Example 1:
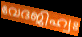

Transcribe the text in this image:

വേദജിഹ്വഃ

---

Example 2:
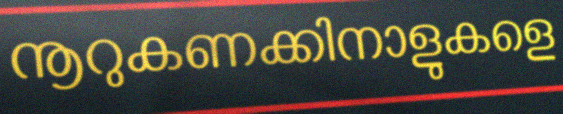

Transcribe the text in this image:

നൂറുകണക്കിനാളുകളെ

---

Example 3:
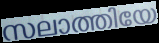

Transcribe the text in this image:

സലാത്തിയേ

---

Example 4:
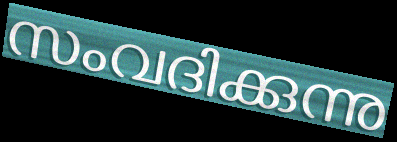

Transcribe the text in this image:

സംവദിക്കുന്നു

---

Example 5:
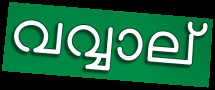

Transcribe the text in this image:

വവ്വാല്